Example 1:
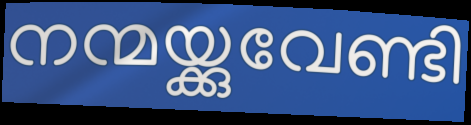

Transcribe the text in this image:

നന്മയ്ക്കുവേണ്ടി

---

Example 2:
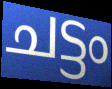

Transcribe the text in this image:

ചട്ടം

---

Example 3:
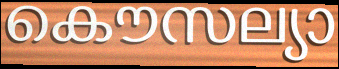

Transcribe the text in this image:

കൌസല്യാ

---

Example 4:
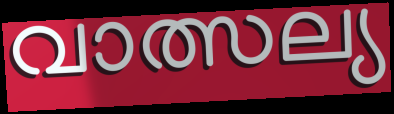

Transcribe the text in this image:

വാത്സല്യ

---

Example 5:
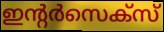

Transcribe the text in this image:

ഇന്റർസെക്സ്